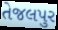
તેજલપુર